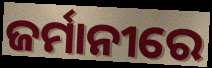
ଜର୍ମାନୀରେ